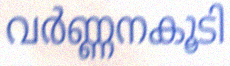
വർണ്ണനകൂടി